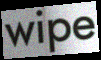
wipe